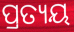
ପ୍ରତ୍ଯୟ